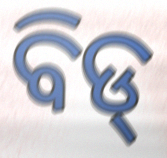
ବିଡ୍